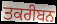
ਤਕਰੀਬਨ